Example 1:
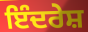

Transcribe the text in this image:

ਇੰਦਰੇਸ਼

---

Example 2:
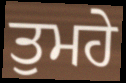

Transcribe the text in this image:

ਤੁਮਹੇ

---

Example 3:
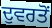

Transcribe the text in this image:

ਦੁਵਰਤੋਂ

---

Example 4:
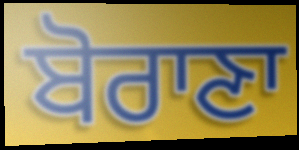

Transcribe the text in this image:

ਬੋਰਾਣਾ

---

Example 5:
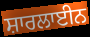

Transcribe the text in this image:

ਸ਼ਾਰਲਾਈਨ